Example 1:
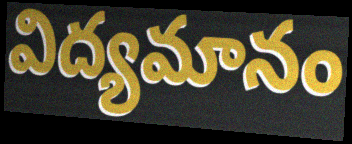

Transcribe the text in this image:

విద్యమానం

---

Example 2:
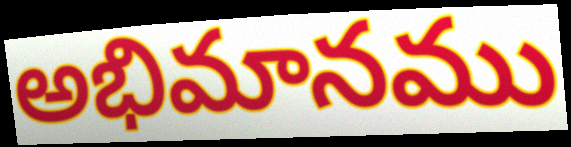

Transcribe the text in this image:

అభిమానము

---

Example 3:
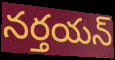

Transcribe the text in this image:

నర్తయన్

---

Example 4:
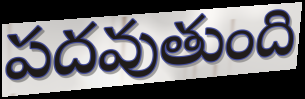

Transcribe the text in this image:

పదవుతుంది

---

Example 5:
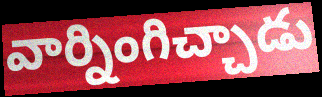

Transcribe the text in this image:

వార్నింగిచ్చాడు